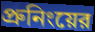
প্রুনিংয়ের